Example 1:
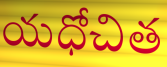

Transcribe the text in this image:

యధోచిత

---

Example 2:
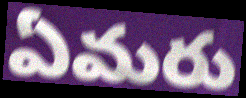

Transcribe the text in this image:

ఏమరు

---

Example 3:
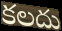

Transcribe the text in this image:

కలదు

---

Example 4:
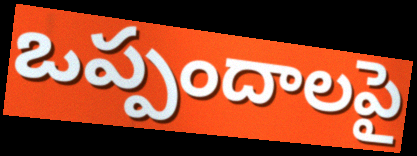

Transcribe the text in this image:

ఒప్పందాలపై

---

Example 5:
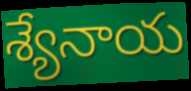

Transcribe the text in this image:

శ్యేనాయ